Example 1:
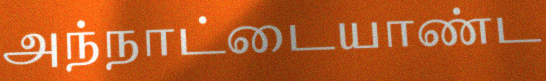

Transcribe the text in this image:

அந்நாட்டையாண்ட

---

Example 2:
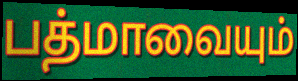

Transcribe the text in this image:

பத்மாவையும்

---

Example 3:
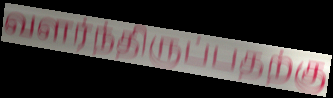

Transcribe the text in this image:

வளர்ந்திருப்பதற்கு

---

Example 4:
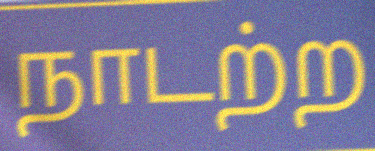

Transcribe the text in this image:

நாடற்ற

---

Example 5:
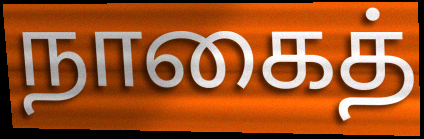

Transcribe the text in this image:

நாகைத்